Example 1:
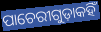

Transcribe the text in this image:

ପାଚେରୀଗୁଡ଼ାକହିଁ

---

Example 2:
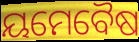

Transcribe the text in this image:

ୟମେବୈଷ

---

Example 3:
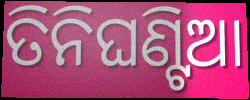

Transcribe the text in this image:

ତିନିଘଣ୍ଟିଆ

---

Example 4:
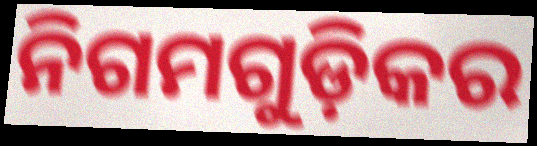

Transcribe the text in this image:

ନିଗମଗୁଡ଼ିକର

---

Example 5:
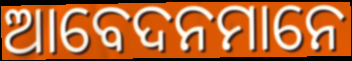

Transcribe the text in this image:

ଆବେଦନମାନେ